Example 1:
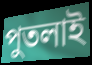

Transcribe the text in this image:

পুতলাই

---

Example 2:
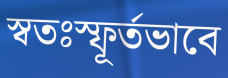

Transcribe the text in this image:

স্বতঃস্ফূৰ্তভাবে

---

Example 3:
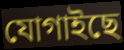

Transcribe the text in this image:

যোগাইছে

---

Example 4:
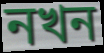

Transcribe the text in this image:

নখন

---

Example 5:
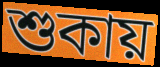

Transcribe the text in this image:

শুকায়